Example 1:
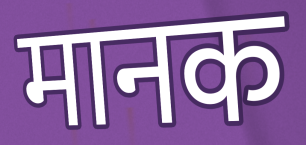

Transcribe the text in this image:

मानक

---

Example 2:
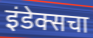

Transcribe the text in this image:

इंडेक्सचा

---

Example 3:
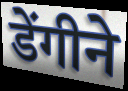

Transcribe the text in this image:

डेंगीने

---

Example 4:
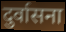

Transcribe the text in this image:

दुर्वासना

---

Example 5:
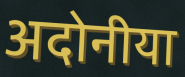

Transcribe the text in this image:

अदोनीया